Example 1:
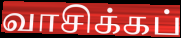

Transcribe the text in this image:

வாசிக்கப்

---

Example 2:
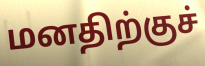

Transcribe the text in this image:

மனதிற்குச்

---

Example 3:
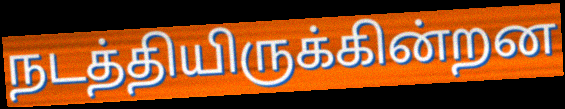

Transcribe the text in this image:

நடத்தியிருக்கின்றன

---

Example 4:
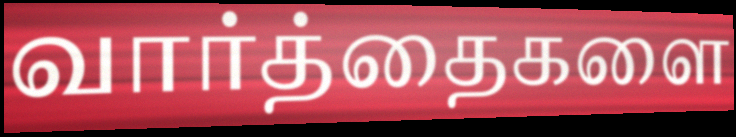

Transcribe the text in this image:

வார்த்தைகளை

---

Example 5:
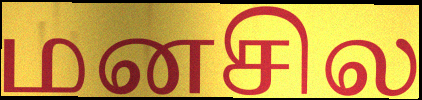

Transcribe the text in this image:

மனசில